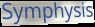
Symphysis